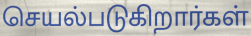
செயல்படுகிறார்கள்